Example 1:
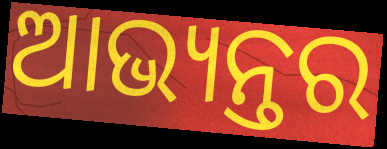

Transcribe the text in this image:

ଆଭ୍ୟନ୍ତର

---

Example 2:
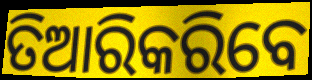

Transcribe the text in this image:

ତିଆରିକରିବେ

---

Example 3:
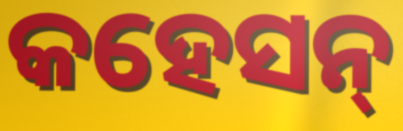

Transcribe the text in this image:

କହେସନ୍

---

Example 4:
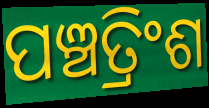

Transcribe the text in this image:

ପଞ୍ଚତ୍ରିଂଶ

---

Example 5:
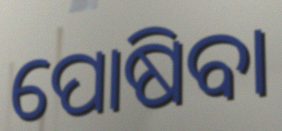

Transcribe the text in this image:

ପୋଷିବା